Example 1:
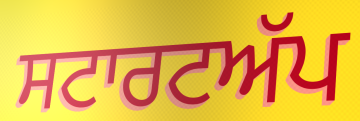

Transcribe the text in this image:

ਸਟਾਰਟਅੱਪ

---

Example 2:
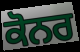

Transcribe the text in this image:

ਕੋਨਰ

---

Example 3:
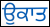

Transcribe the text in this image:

ਉਕਾਤ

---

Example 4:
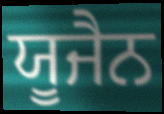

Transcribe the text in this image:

ਯੂਜੈਨ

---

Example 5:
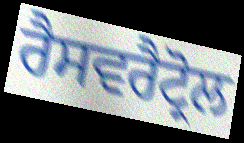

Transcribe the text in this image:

ਰੈਸਵਰੈਟ੍ਰੋਲ